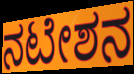
ನಟೇಶನ